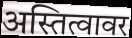
अस्तित्वावर